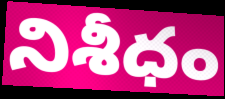
నిశీధం